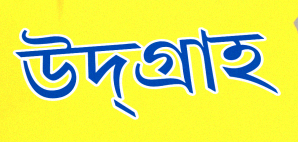
উদ্গ্রাহ